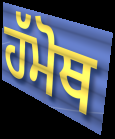
ਹੱਮੋਥ